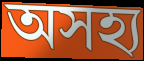
অসহ্য